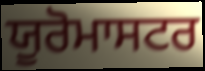
ਯੂਰੋਮਾਸਟਰ